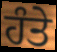
ਹੰਤੇ